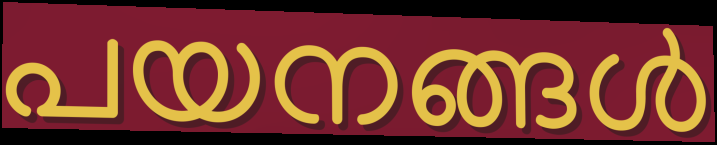
പയനങ്ങൾ